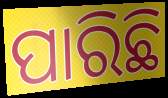
ପାରିଛି